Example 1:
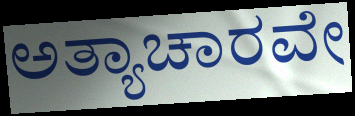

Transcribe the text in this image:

ಅತ್ಯಾಚಾರವೇ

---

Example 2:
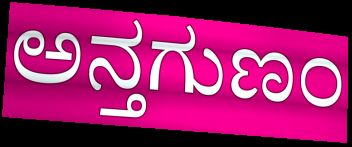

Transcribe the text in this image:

ಅನ್ತಗುಣಂ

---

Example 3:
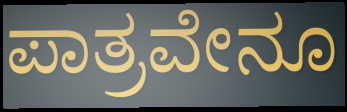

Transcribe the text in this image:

ಪಾತ್ರವೇನೂ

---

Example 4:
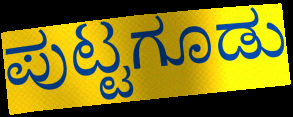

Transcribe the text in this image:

ಪುಟ್ಟಗೂಡು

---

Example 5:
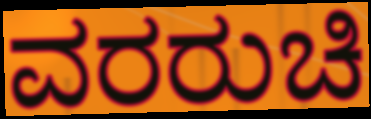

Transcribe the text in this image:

ವರರುಚಿ